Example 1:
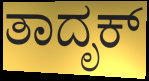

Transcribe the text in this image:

ತಾದೃಕ್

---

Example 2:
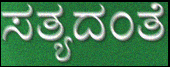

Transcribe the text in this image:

ಸತ್ಯದಂತೆ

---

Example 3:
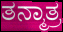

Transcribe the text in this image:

ತನ್ಮಾತ್ರ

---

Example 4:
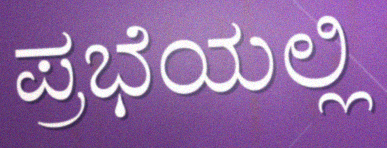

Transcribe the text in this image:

ಪ್ರಭೆಯಲ್ಲಿ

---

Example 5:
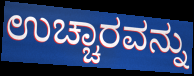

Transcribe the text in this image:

ಉಚ್ಚಾರವನ್ನು